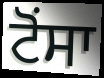
ਟੋਂਸਾ